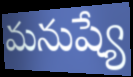
మనుష్యే